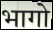
भागो